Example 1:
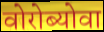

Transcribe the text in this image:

वोरोब्योवा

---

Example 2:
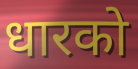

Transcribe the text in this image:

धारको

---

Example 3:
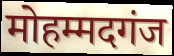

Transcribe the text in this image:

मोहम्मदगंज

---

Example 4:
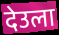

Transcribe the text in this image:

देउला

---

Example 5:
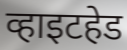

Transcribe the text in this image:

व्हाइटहेड